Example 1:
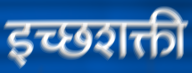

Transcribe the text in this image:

इच्छशक्ती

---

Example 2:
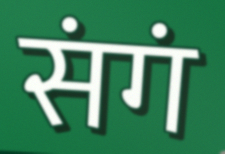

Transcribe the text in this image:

संगं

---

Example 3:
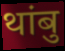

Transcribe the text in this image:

थांबु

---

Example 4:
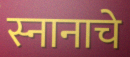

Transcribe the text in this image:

स्नानाचे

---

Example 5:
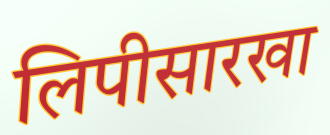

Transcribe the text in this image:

लिपीसारखा